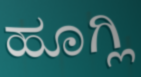
ಹೂಗ್ಲಿ